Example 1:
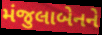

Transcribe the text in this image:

મંજુલાબેનને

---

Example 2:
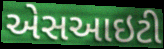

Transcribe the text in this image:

એસઆઇટી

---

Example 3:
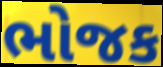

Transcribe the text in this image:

ભોજક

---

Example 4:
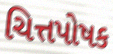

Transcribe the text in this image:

ચિત્તપોષક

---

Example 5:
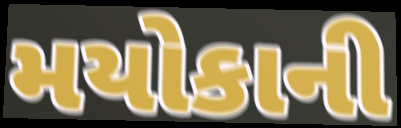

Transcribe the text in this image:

મયોકાની